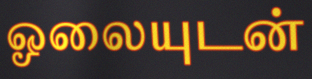
ஓலையுடன்